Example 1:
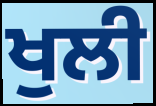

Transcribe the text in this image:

ਖੁਲੀ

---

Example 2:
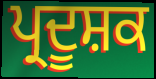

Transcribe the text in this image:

ਪ੍ਰਦੂਸ਼ਕ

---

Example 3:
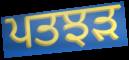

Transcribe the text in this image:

ਪਤਝੜ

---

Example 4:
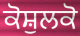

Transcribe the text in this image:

ਕੋਸ਼ੁਲਕੋ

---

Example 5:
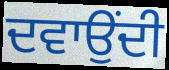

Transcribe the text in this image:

ਦਵਾਉਂਦੀ